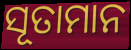
ସୂତାମାନ